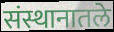
संस्थानातले